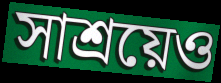
সাশ্রয়েও